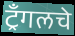
ट्रँगलचे